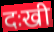
दःखी